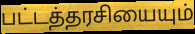
பட்டத்தரசியையும்